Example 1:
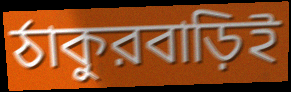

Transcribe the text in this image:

ঠাকুরবাড়িই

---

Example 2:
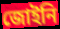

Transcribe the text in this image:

জোইনি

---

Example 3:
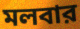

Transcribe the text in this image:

মলবার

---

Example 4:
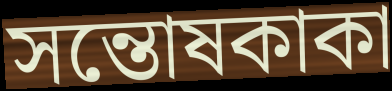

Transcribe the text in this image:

সন্তোষকাকা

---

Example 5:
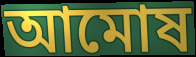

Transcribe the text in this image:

আমোষ